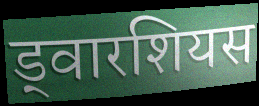
ड्वारशियस